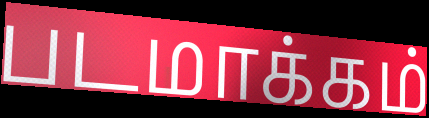
படமாக்கம்